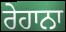
ਰੇਹਾਨਾ